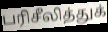
பரிசீலித்துக்